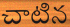
చాటిన